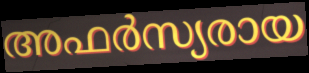
അഫർസ്യരായ